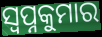
ସ୍ଵପ୍ନକୁମାର